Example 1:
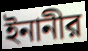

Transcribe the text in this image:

ইনানীর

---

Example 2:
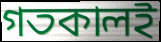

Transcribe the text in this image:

গতকালই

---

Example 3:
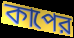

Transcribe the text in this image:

কাপের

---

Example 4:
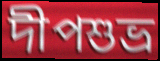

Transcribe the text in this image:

দীপশুভ্র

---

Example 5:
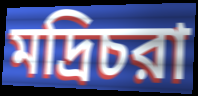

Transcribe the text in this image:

মদ্রিচরা